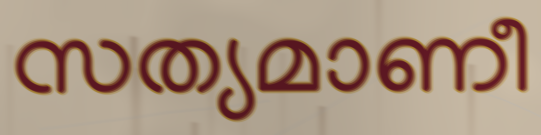
സത്യമാണീ